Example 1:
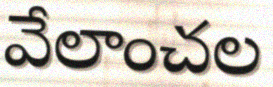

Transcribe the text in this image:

వేలాంచల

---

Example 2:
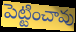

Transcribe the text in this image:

పెట్టించావు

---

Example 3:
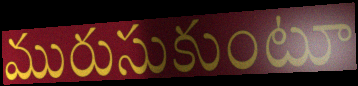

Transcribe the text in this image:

మురుసుకుంటూ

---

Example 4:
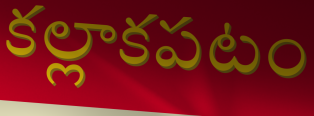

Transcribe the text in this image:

కల్లాకపటం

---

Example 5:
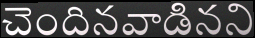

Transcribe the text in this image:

చెందినవాడినని